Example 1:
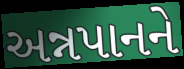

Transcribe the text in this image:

અન્નપાનને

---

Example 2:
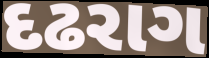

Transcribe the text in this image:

દઢરાગ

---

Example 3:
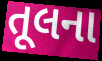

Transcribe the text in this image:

તૂલના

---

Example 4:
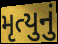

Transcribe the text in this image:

મૃત્યુનું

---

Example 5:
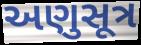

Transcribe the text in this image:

અણુસૂત્ર